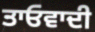
ਤਾਓਵਾਦੀ